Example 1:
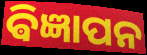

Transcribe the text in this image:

ଵିଜ୍ଞାପନ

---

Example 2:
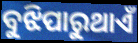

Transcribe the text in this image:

ବୁଝିପାରୁଥାଏଁ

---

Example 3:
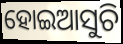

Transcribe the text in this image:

ହୋଇଆସୁଚି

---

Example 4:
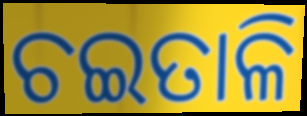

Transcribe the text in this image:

ଚଇତାଳି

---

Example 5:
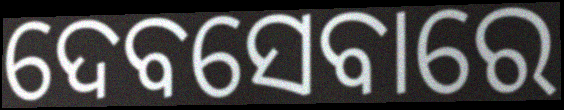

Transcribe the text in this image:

ଦେବସେବାରେ